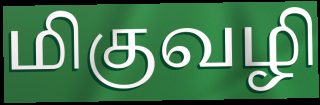
மிகுவழி